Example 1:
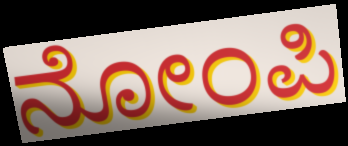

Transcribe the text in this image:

ನೋಂಪಿ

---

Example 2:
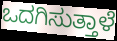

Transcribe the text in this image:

ಒದಗಿಸುತ್ತಾಳೆ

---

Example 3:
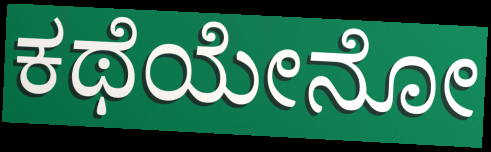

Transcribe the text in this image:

ಕಥೆಯೇನೋ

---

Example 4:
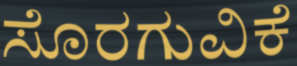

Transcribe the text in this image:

ಸೊರಗುವಿಕೆ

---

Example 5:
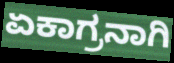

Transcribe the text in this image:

ಏಕಾಗ್ರನಾಗಿ